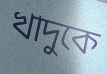
খাদুকে